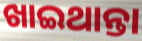
ଖାଇଥାନ୍ତା